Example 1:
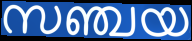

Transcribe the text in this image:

സഞ്ചയ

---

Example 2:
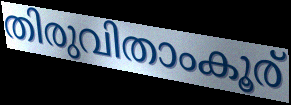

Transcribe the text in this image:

തിരുവിതാംകൂര്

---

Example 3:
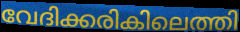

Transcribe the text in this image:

വേദിക്കരികിലെത്തി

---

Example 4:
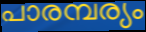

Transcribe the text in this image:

പാരമ്പര്യം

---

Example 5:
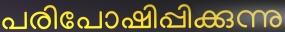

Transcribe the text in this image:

പരിപോഷിപ്പിക്കുന്നു